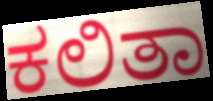
ಕಲಿತಾ